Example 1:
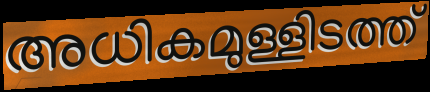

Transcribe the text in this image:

അധികമുള്ളിടത്ത്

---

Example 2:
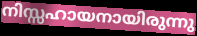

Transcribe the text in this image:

നിസ്സഹായനായിരുന്നു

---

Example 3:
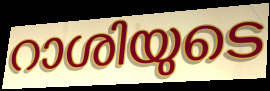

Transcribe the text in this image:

റാശിയുടെ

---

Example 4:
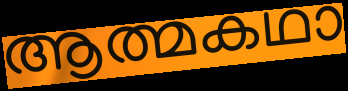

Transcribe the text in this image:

ആത്മകഥാ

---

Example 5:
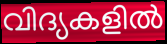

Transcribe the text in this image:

വിദ്യകളിൽ